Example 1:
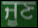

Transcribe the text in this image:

ਜੂਣ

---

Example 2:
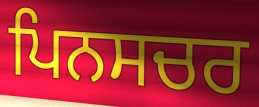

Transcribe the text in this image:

ਪਿਨਸਚਰ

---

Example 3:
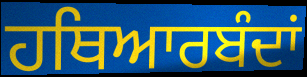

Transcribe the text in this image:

ਹਥਿਆਰਬੰਦਾਂ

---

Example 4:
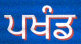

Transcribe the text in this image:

ਪਖੰਡ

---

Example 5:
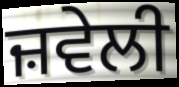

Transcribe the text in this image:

ਜ਼ਵੇਲੀ